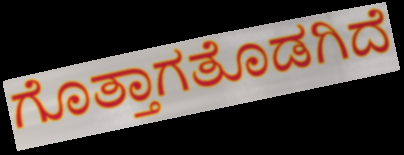
ಗೊತ್ತಾಗತೊಡಗಿದೆ